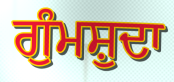
ਗੁੰਮਸ਼ੁਦਾ